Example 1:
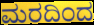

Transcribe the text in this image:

ಮರದಿಂದ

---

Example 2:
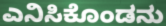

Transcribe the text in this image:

ಎನಿಸಿಕೊಂಡನು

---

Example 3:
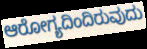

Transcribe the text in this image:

ಆರೋಗ್ಯದಿಂದಿರುವುದು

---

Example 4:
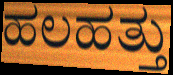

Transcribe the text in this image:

ಹಲಹತ್ತು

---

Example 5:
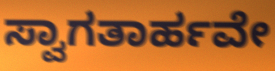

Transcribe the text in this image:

ಸ್ವಾಗತಾರ್ಹವೇ